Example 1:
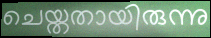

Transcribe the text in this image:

ചെയ്തതായിരുന്നു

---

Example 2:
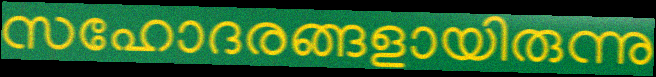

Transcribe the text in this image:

സഹോദരങ്ങളായിരുന്നു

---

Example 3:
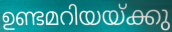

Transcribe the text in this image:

ഉണ്ടമറിയയ്ക്കു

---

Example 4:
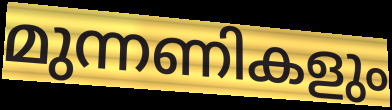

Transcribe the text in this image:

മുന്നണികളും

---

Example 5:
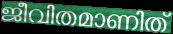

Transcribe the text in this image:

ജീവിതമാണിത്